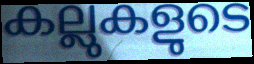
കല്ലുകളുടെ